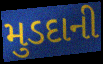
મુડદાની